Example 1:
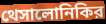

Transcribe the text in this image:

থেসালোনিকির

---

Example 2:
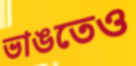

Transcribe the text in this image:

ভাঙতেও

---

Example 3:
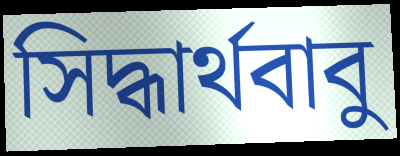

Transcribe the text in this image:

সিদ্ধার্থবাবু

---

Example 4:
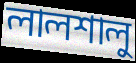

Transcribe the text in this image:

লালশালু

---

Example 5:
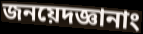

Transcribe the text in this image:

জনয়েদজ্ঞানাং